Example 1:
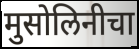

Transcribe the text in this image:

मुसोलिनीचा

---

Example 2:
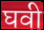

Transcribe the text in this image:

घवी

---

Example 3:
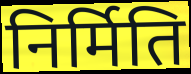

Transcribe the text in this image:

निर्मिति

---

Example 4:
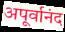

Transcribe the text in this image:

अपूर्वानंद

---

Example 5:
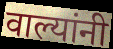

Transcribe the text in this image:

वाल्यांनी